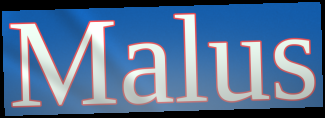
Malus